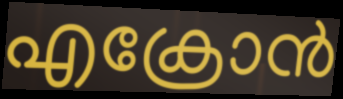
എക്രോൻ